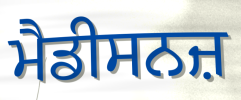
ਮੈਡੀਸਨਜ਼